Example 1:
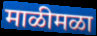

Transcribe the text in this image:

माळीमळा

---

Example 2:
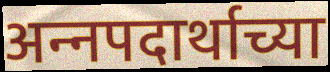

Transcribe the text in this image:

अन्नपदार्थाच्या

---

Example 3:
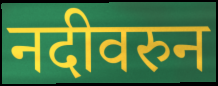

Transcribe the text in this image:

नदीवरुन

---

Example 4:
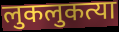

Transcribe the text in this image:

लुकलुकत्या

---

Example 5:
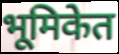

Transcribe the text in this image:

भूमिकेत